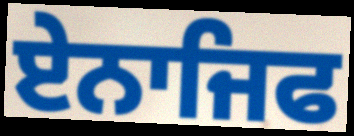
ਏਨਾਜਿਫ